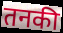
तनकी